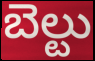
బెల్టు